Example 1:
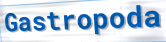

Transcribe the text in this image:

Gastropoda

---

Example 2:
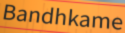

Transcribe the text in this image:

Bandhkame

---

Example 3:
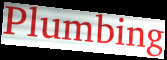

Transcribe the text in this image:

Plumbing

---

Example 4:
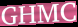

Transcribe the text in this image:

GHMC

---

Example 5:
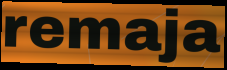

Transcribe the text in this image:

remaja